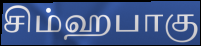
சிம்ஹபாகு